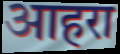
आहरा